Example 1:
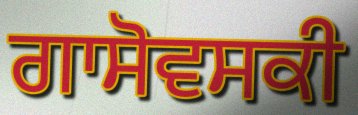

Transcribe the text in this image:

ਗਾਸੋਵਸਕੀ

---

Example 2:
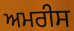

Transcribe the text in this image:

ਅਮਰੀਸ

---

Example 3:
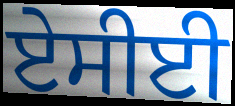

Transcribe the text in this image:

ਏਸੀਈ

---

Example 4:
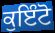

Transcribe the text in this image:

ਕੁਇੰਟੋ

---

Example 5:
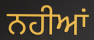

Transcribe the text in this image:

ਨਹੀਆਂ